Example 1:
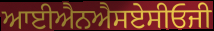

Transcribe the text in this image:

ਆਈਐਨਐਸਏਸੀਓਜੀ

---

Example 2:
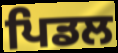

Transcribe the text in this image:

ਪਿਡਲ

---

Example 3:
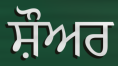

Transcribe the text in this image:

ਸ਼ੌਅਰ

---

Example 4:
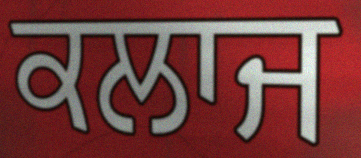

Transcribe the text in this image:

ਕਲਾਜ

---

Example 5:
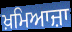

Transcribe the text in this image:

ਖ਼ਮਿਆਜ਼ਾ